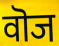
वॊज